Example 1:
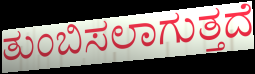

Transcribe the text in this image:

ತುಂಬಿಸಲಾಗುತ್ತದೆ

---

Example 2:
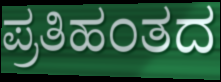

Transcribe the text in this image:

ಪ್ರತಿಹಂತದ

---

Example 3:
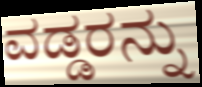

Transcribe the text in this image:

ವಡ್ಡರನ್ನು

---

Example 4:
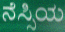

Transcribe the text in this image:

ನೆಸ್ಸಿಯ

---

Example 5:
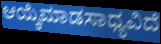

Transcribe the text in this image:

ಆಯ್ಕೆಮಾಡಸಾಧ್ಯವಿದೆ